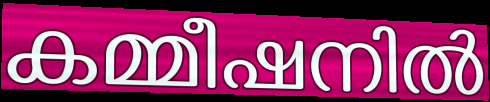
കമ്മീഷനിൽ